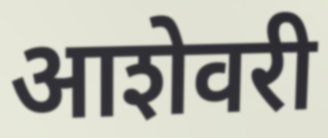
आशेवरी